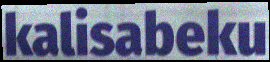
kalisabeku